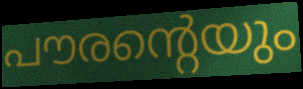
പൗരന്റെയും